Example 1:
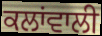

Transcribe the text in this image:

ਕਲਾਂਵਾਲੀ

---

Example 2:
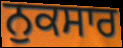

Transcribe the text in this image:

ਨੁਕਸਾਰ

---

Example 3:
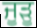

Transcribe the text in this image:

ਜੂੜੂ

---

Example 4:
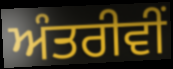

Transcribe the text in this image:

ਅੰਤਰੀਵੀਂ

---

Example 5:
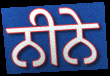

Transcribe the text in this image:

ਨੀਨੇ